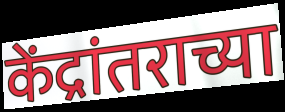
केंद्रांतराच्या